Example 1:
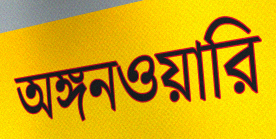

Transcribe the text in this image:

অঙ্গনওয়ারি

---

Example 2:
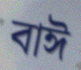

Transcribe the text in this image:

বাঈ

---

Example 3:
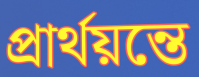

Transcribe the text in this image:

প্রার্থয়ন্তে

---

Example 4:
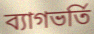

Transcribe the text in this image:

ব্যাগভর্তি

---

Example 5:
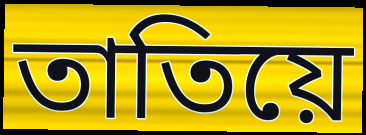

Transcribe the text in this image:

তাতিয়ে